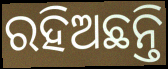
ରହିଅଛନ୍ତି